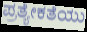
ಪ್ರತ್ಯೇಕತೆಯು